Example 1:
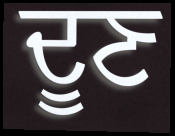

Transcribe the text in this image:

ਦੂਣ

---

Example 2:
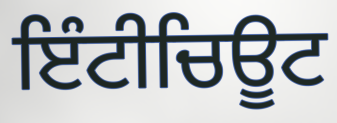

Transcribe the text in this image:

ਇੰਟੀਚਿਊਟ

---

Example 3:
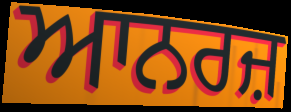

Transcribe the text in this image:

ਆਨਰਜ਼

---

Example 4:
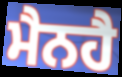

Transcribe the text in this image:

ਮੈਨਹੈ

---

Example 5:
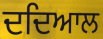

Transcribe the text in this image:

ਦਦਿਆਲ